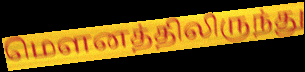
மௌனத்திலிருந்து